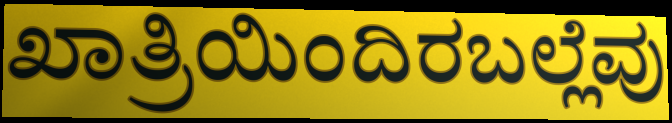
ಖಾತ್ರಿಯಿಂದಿರಬಲ್ಲೆವು